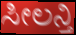
ಸೀಲನ್ತಿ